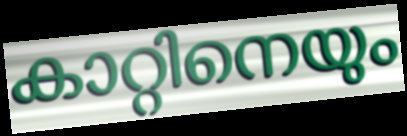
കാറ്റിനെയും